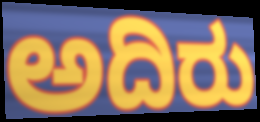
ಅದಿರು